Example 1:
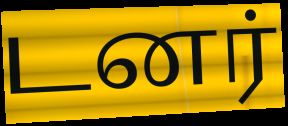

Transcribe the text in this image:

டனர்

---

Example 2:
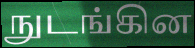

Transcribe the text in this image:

நுடங்கின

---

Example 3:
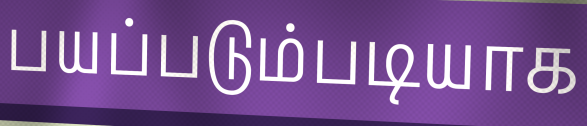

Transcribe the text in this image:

பயப்படும்படியாக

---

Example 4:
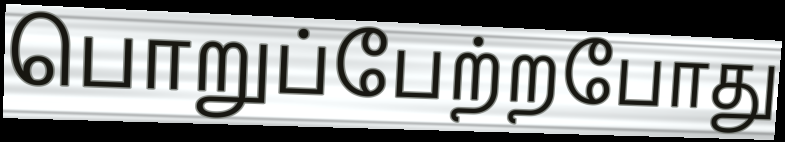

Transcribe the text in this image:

பொறுப்பேற்றபோது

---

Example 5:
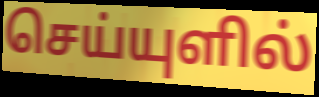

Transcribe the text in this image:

செய்யுளில்